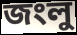
জংলু